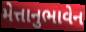
મેત્તાનુભાવેન